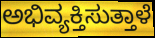
ಅಭಿವ್ಯಕ್ತಿಸುತ್ತಾಳೆ